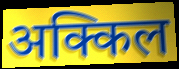
अक्किल